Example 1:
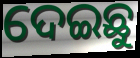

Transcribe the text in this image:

ଦେଇଛୁ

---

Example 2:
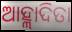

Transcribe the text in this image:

ଆହ୍ଲାଦିତା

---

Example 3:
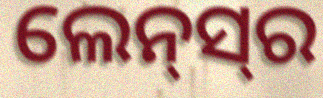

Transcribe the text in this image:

ଲେନ୍‌ସ୍‍ର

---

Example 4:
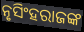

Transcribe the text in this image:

ନୃସିଂହରାଜଙ୍କ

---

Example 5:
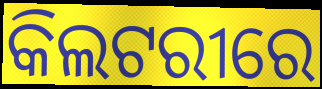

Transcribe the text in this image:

କିଲଟରୀରେ